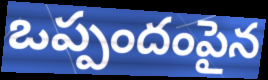
ఒప్పందంపైన